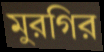
মুরগির